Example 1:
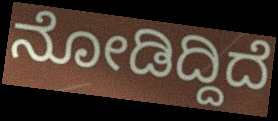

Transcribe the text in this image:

ನೋಡಿದ್ದಿದೆ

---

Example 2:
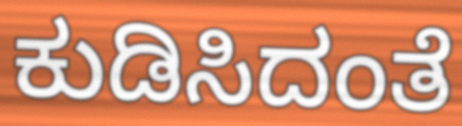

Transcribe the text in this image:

ಕುಡಿಸಿದಂತೆ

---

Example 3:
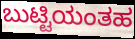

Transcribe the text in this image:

ಬುಟ್ಟಿಯಂತಹ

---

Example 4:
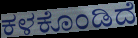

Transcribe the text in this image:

ಕಳಕೊಂಡಿದೆ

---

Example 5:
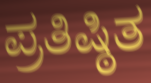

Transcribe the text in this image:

ಪ್ರತಿಷ್ಠಿತ